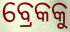
ବ୍ରେକକୁ